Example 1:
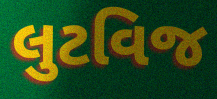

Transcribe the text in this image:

લુટવિજ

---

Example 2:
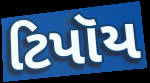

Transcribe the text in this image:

ટિપૉય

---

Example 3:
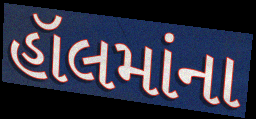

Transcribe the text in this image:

હૉલમાંના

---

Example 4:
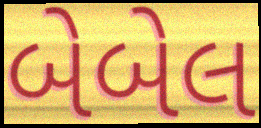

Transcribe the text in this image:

બેબેલ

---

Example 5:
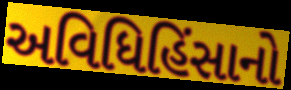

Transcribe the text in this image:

અવિધિહિંસાનો